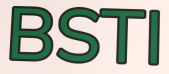
BSTI